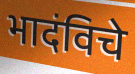
भादंविचे